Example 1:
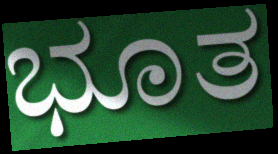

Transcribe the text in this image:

ಭೂತ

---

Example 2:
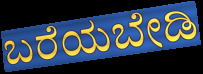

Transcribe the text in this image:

ಬರೆಯಬೇಡಿ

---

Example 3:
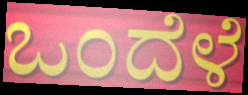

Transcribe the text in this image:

ಒಂದೆಳೆ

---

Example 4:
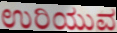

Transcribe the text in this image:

ಉರಿಯುವ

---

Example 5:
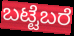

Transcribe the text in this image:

ಬಟ್ಟೆಬರೆ